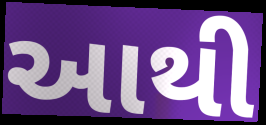
આથી